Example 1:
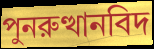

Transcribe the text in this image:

পুনরুত্থানবিদ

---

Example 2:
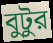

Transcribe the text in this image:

বুটুর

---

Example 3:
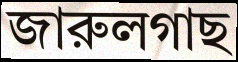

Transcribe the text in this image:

জারুলগাছ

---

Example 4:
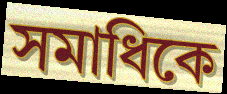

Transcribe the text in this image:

সমাধিকে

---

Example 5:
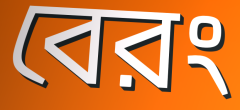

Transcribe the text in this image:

বেরং